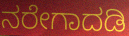
ನರೇಗಾದಡಿ